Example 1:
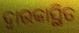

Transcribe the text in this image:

ଦ୍ୱାରକାସ୍ଥିତ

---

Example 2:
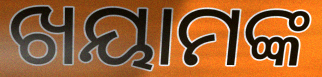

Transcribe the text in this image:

ଖୟାମଙ୍କ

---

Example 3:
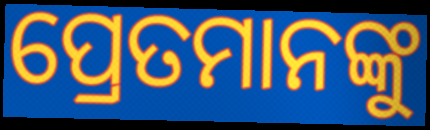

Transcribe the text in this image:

ପ୍ରେତମାନଙ୍କୁ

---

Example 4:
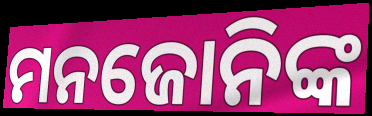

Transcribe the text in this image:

ମନଜୋନିଙ୍କ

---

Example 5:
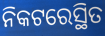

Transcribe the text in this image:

ନିକଟରେସ୍ଥିତ